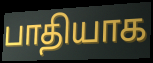
பாதியாக